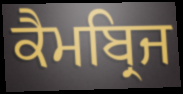
ਕੈਮਬ੍ਰਿਜ